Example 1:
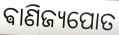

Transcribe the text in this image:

ଵାଣିଜ୍ୟପୋତ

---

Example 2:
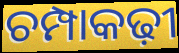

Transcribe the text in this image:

ଚମ୍ପାକଢ଼ୀ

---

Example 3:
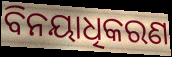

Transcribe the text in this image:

ବିନୟାଧିକରଣ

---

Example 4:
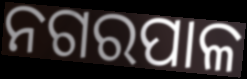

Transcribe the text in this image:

ନଗରପାଳ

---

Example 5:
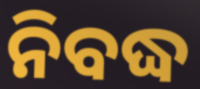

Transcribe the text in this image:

ନିବଦ୍ଧ